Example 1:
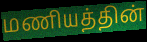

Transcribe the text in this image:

மணியத்தின்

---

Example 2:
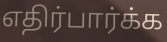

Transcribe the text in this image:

எதிர்பார்க்க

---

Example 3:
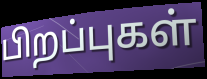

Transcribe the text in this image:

பிறப்புகள்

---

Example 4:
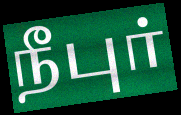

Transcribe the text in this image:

நீபுர்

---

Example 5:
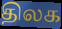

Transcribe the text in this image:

திலக